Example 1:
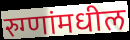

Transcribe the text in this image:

रुग्णांमधील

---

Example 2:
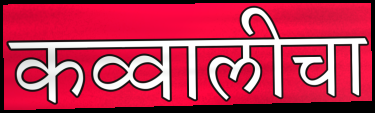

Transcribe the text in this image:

कव्वालीचा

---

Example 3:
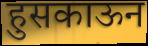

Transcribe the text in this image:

हुसकाऊन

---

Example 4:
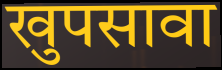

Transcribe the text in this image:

खुपसावा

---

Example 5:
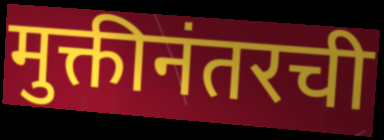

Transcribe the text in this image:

मुक्तीनंतरची